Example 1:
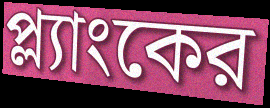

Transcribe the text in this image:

প্ল্যাংকের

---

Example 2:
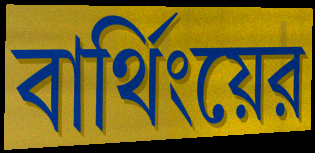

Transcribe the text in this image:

বার্থিংয়ের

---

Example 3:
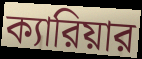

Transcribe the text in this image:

ক্যারিয়ার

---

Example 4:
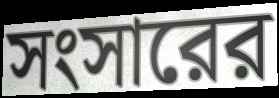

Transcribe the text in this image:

সংসারের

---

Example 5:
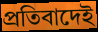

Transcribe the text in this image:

প্রতিবাদেই